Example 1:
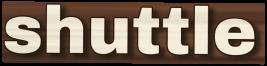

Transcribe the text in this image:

shuttle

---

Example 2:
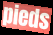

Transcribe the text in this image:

pieds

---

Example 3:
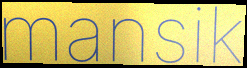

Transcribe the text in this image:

mansik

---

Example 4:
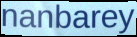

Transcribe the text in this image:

nanbarey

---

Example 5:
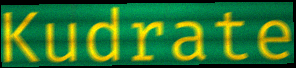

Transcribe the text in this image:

Kudrate